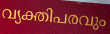
വ്യക്തിപരവും